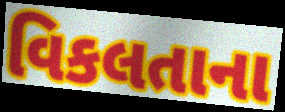
વિકલતાના